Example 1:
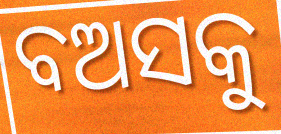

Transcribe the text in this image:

ବଅସକୁ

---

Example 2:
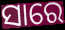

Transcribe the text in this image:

ସାରେ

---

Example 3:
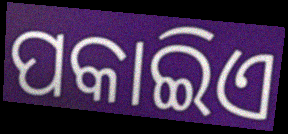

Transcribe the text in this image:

ପକାଇିଏ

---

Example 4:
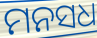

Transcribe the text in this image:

ମନସଧ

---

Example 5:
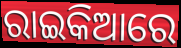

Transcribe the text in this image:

ରାଇକିଆରେ